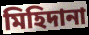
মিহিদানা